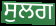
ਸੁਲਗ